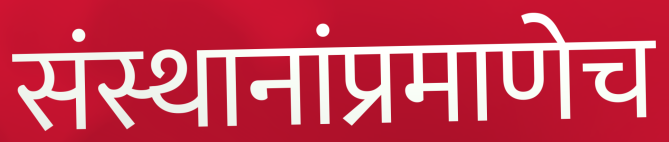
संस्थानांप्रमाणेच